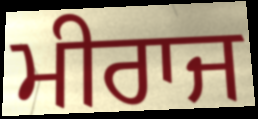
ਮੀਰਾਜ